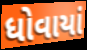
ધોવાયાં